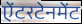
ऐंटरटेनमेंट